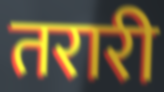
तरारी